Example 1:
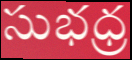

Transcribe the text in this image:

సుభధ్ర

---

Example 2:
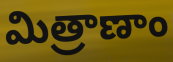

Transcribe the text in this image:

మిత్రాణాం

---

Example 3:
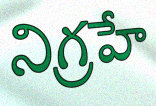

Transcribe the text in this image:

నిగ్రహే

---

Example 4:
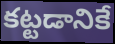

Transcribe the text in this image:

కట్టడానికే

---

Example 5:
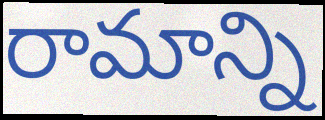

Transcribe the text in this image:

రామాన్ని